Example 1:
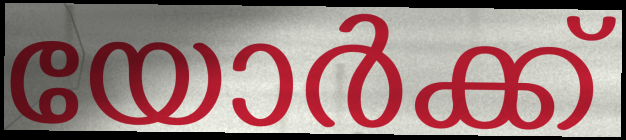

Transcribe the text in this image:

യോർക്ക്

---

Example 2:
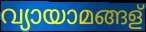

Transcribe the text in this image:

വ്യായാമങ്ങള്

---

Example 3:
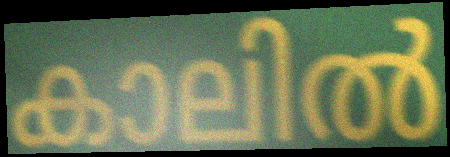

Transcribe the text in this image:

കാലിൽ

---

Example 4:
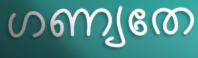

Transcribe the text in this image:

ഗണ്യതേ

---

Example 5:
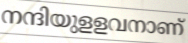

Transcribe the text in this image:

നന്ദിയുളളവനാണ്